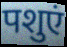
पशुएं